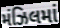
મંઝિલમાં